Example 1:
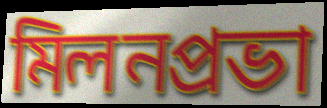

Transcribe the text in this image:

মিলনপ্রভা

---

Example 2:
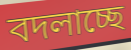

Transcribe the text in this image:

বদলাচ্ছে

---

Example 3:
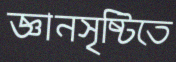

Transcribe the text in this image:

জ্ঞানসৃষ্টিতে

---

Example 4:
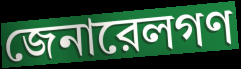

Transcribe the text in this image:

জেনারেলগণ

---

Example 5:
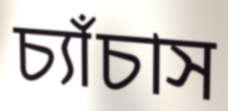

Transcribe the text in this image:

চ্যাঁচাস